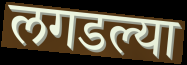
लगडल्या